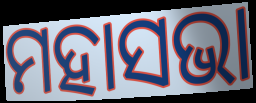
ମହାସଭା